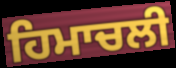
ਹਿਮਾਚਲੀ